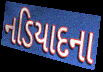
નડિયાદના